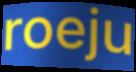
roeju